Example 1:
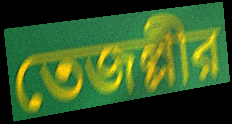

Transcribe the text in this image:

তেজল্লীর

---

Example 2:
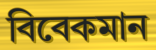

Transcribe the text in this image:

বিবেকমান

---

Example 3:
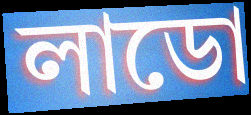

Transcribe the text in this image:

লাডো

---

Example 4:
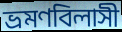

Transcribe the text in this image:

ভ্রমণবিলাসী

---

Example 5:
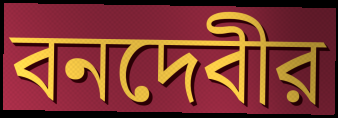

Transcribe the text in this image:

বনদেবীর